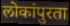
लोकांपुरता